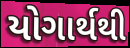
યોગાર્થથી